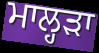
ਮਾਲ੍ਹੜਾ